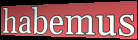
habemus